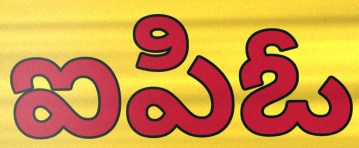
ఐపిఓ